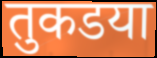
तुकडया